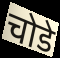
चोडे